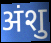
अंशु